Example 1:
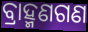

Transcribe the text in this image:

ବ୍ରାହ୍ମଣଗଣ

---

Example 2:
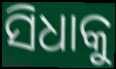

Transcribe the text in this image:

ସିଧାକୁ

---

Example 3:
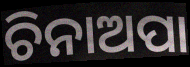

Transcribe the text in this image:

ଚିନାଅପା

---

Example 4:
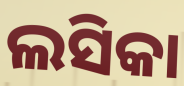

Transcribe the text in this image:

ଲସିକା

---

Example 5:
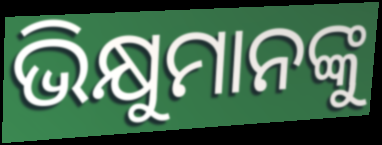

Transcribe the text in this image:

ଭିକ୍ଷୁମାନଙ୍କୁ